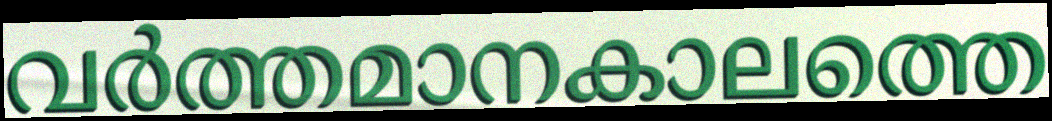
വർത്തമാനകാലത്തെ